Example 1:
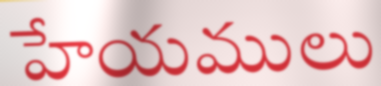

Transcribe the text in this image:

హేయములు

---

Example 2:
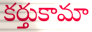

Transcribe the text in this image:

కర్తుకామా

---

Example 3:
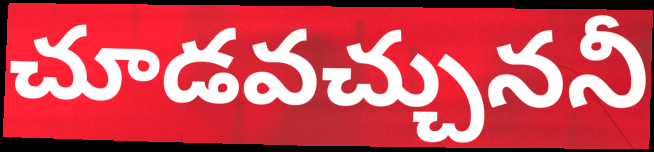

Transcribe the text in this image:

చూడవచ్చుననీ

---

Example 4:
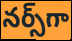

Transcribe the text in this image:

నర్స్‌గా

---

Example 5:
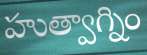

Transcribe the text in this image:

హుత్వాగ్నిం